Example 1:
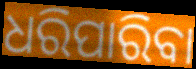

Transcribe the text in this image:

ଧରିପାରିବା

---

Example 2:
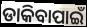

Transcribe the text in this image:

ଡାକିବାପାଇଁ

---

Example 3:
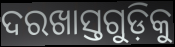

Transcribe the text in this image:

ଦରଖାସ୍ତଗୁଡ଼ିକୁ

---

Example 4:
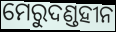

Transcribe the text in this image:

ମେରୁଦଣ୍ଡହୀନ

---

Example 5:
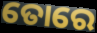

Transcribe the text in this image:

ତୋରେ